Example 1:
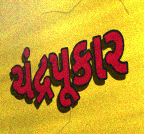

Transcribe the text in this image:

ચંદ્રપૂકાર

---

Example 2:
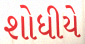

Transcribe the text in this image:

શોધીયે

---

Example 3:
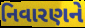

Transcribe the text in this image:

નિવારણને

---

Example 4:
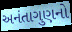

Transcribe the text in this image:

અનંતાગુણનો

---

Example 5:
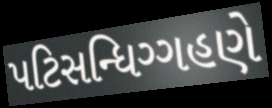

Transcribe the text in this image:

પટિસન્ધિગ્ગહણે